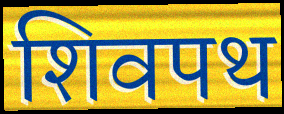
शिवपथ